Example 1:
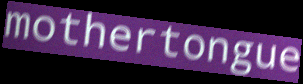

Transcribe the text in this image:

mothertongue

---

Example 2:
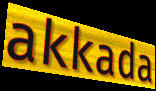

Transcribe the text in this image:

akkada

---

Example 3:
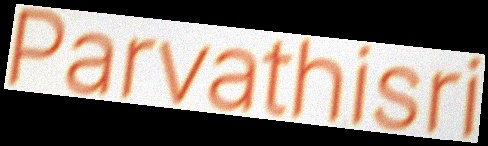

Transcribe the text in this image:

Parvathisri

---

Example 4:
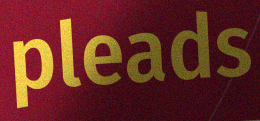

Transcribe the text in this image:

pleads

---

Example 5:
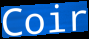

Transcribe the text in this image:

Coir